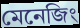
মেনেজিং